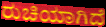
ರುಚಿಯಾಗಿದೆ